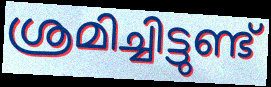
ശ്രമിച്ചിട്ടുണ്ട്